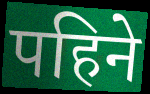
पहिने